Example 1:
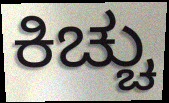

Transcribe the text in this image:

ಕಿಚ್ಚು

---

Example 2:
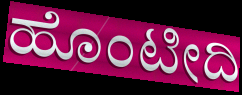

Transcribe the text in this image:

ಹೊಂಟೀದಿ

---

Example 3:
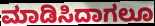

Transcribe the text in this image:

ಮಾಡಿಸಿದಾಗಲೂ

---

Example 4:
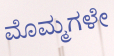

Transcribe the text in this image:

ಮೊಮ್ಮಗಳೇ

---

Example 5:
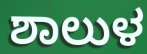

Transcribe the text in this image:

ಶಾಲುಳ